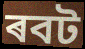
ৰবট